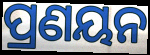
ପ୍ରଣୟନ